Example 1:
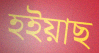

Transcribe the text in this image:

হইয়াছ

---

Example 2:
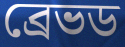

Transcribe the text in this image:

ব্রেভড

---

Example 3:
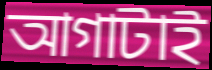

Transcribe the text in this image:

আগাটাই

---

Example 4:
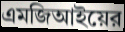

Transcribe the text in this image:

এমজিআইয়ের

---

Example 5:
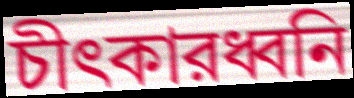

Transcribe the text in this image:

চীৎকারধ্বনি